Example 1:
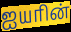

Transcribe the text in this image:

ஐயரின்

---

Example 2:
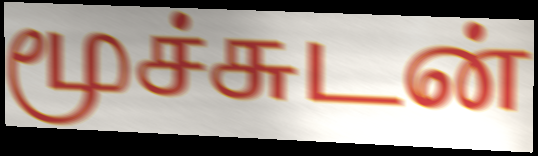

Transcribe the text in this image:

மூச்சுடன்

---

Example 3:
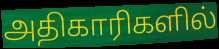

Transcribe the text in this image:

அதிகாரிகளில்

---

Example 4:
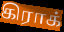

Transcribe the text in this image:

கிராக்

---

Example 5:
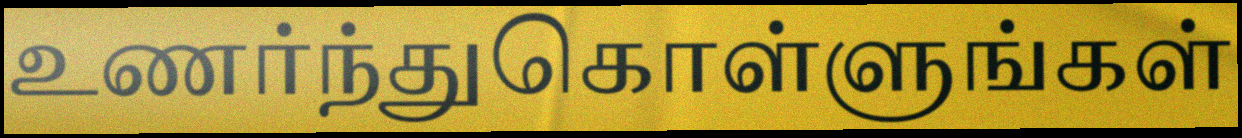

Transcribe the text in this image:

உணர்ந்துகொள்ளுங்கள்